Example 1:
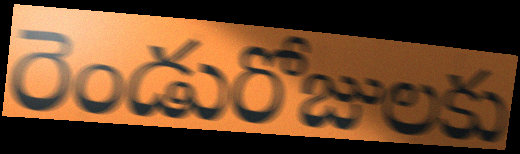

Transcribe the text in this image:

రెండురోజులకు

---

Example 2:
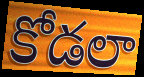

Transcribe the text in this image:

కోడలా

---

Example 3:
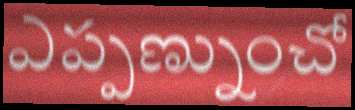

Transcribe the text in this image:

ఎప్పణ్నుంచో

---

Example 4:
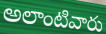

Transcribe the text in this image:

అలాంటివారు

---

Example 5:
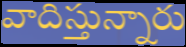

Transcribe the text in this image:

వాదిస్తున్నారు